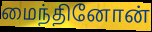
மைந்தினோன்